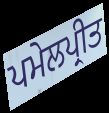
ਪਮੇਲਪ੍ਰੀਤ